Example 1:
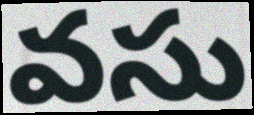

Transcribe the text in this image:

వసు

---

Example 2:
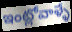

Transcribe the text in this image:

ఇంట్లోవాళ్ళే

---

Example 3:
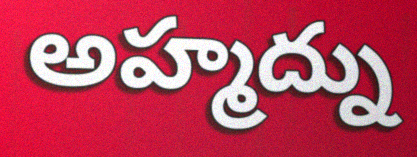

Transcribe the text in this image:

అహ్మద్ను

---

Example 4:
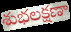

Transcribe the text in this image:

శుభలక్షణా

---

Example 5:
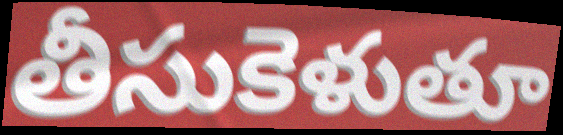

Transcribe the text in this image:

తీసుకెళుతూ